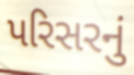
પરિસરનું